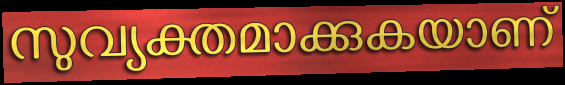
സുവ്യക്തമാക്കുകയാണ്